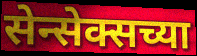
सेन्सेक्सच्या